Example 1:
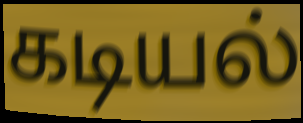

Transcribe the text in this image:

கடியல்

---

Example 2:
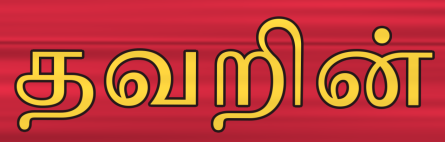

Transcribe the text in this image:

தவறின்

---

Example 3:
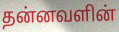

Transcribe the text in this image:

தன்னவளின்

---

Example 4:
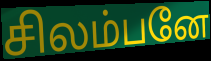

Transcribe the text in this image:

சிலம்பனே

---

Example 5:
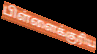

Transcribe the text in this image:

பிள்ளைக்குரிய